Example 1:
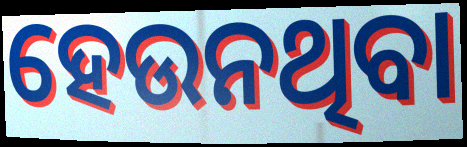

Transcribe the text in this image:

ହେଉନଥିବା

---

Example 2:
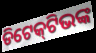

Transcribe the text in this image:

ଡିଟେକ୍‌ଟିଭଙ୍କ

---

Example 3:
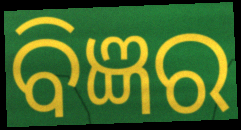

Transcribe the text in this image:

ବିଜ୍ଞର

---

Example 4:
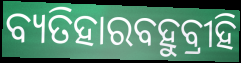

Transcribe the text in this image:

ବ୍ୟତିହାରବହୁବ୍ରୀହି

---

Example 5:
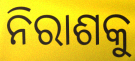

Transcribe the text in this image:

ନିରାଶକୁ